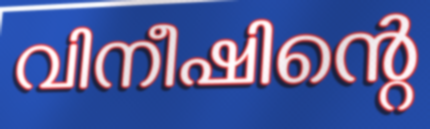
വിനീഷിന്റെ